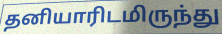
தனியாரிடமிருந்து